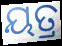
ୟତ୍ର